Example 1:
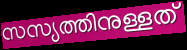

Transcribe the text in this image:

സസ്യത്തിനുള്ളത്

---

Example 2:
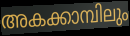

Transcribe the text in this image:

അകക്കാമ്പിലും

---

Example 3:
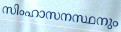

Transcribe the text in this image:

സിംഹാസനസ്ഥനും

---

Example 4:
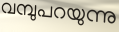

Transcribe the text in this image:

വമ്പുപറയുന്നു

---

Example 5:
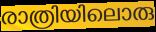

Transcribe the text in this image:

രാത്രിയിലൊരു